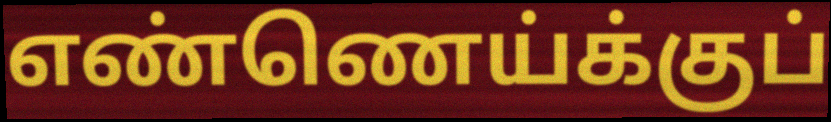
எண்ணெய்க்குப்